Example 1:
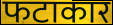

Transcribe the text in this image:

फटाकार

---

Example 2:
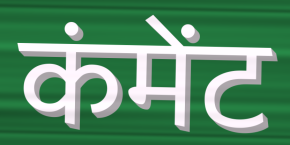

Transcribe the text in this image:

कंमेंट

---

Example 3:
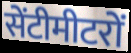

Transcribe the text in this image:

सेंटीमीटरों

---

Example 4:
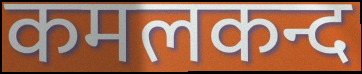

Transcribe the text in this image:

कमलकन्द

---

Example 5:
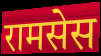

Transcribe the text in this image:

रामसेस